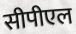
सीपीएल